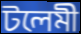
টলেমী